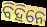
ବିହିନେ